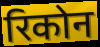
रिकोन